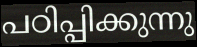
പഠിപ്പിക്കുന്നു